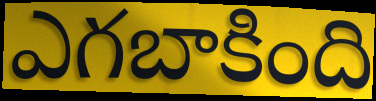
ఎగబాకింది